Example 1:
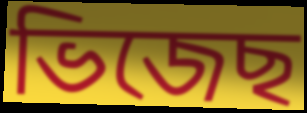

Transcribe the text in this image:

ভিজেছ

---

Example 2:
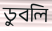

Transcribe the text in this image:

ডুবলি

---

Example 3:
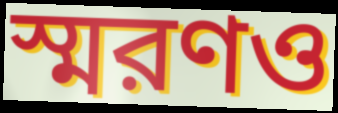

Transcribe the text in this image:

স্মরণও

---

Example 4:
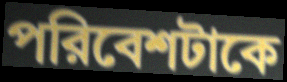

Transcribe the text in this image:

পরিবেশটাকে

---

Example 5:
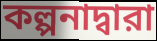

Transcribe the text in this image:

কল্পনাদ্বারা